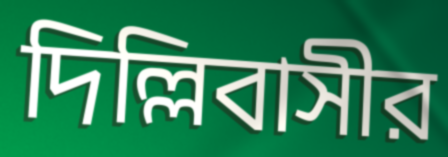
দিল্লিবাসীর